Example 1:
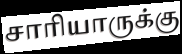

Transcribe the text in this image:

சாரியாருக்கு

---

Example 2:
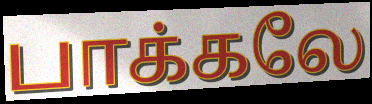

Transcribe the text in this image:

பாக்கலே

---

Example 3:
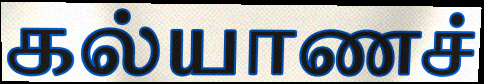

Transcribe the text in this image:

கல்யாணச்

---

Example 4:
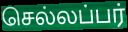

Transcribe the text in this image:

செல்லப்பர்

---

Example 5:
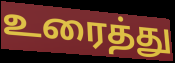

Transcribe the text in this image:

உரைத்து